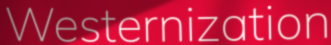
Westernization